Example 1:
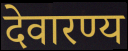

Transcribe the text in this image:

देवारण्य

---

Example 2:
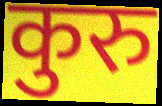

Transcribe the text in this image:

कुरु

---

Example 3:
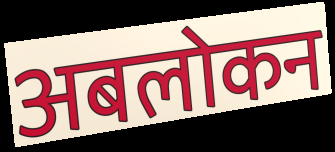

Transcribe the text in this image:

अबलोकन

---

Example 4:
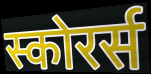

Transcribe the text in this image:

स्कोरर्स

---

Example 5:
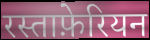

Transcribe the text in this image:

रस्ताफ़ेरियन